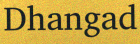
Dhangad